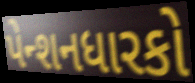
પેન્શનધારકો